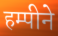
हम्पीने